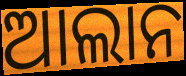
ଆଲାନ